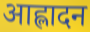
आह्लादन